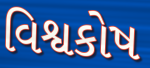
વિશ્વકોષ